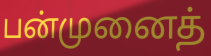
பன்முனைத்